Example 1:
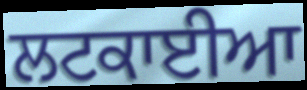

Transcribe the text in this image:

ਲਟਕਾਈਆ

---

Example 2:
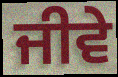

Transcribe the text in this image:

ਜੀਵੇ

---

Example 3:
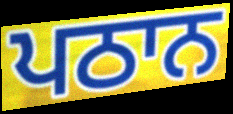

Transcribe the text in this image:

ਪਠਾਨ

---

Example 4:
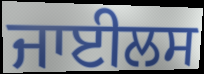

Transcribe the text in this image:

ਜਾਈਲਸ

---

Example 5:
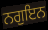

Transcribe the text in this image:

ਨਗੁਇਨ